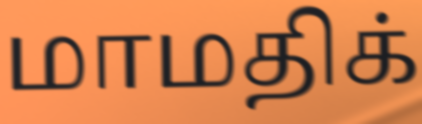
மாமதிக்